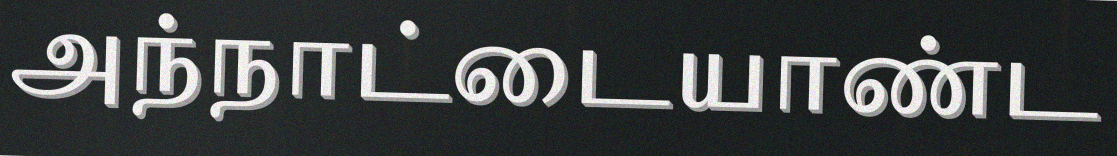
அந்நாட்டையாண்ட